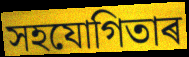
সহযোগিতাৰ